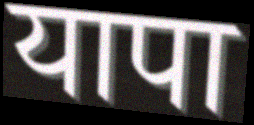
यापा